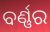
ବର୍ଣ୍ଣର